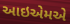
આઇએમએ